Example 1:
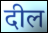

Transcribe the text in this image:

दील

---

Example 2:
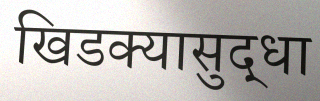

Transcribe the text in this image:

खिडक्यासुद्धा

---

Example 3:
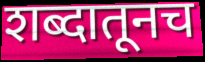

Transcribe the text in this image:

शब्दातूनच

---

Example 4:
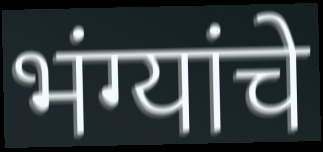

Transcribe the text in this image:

भंग्यांचे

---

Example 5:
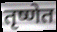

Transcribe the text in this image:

तृष्णेत